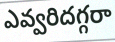
ఎవ్వరిదగ్గరా